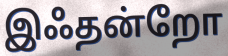
இஃதன்றோ